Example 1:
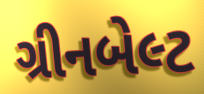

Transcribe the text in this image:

ગ્રીનબેલ્ટ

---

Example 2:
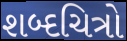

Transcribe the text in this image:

શબ્દચિત્રો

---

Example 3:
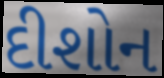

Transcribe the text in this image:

દીશોન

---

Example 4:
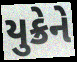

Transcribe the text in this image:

યુક્રેને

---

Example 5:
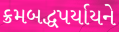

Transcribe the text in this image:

ક્રમબદ્ધપર્યાયને